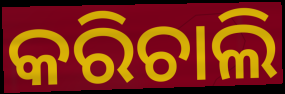
କରିଚାଲି